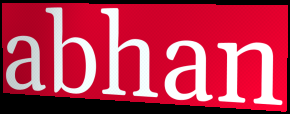
abhan